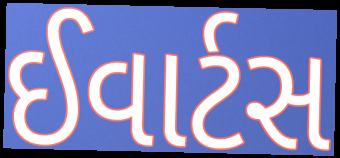
ઈવાર્ટસ